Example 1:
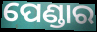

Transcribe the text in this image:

ପେଣ୍ଡାର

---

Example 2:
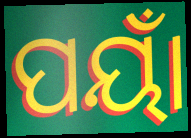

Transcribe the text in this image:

ପୟାଁ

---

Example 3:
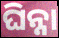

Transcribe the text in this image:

ଘିନ୍ନା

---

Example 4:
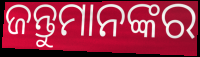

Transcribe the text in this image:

ଜନ୍ତୁମାନଙ୍କର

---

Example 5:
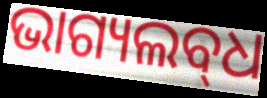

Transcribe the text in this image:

ଭାଗ୍ୟଲବ୍‌ଧ